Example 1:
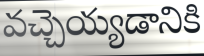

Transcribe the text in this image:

వచ్చెయ్యడానికి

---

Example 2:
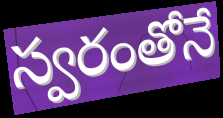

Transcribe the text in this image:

స్వరంతోనే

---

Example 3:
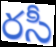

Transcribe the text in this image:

రసీ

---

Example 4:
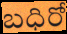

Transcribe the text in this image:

బధిరో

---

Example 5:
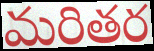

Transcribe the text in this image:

మరితర